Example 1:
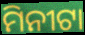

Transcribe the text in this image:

ମିନୀଟା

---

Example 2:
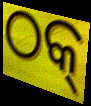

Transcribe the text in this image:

ଠକ୍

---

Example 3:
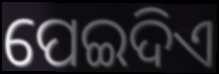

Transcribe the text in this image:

ପେଇଦିଏ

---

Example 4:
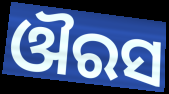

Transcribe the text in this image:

ଔରସ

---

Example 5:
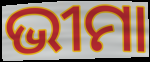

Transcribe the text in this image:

ଭୀମା